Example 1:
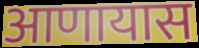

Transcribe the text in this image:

आणायास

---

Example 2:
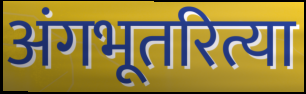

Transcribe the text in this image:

अंगभूतरित्या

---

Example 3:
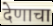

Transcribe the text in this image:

देणाचा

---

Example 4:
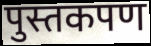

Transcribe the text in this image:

पुस्तकपण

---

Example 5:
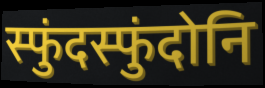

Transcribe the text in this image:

स्फुंदस्फुंदोनि